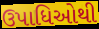
ઉપાધિઓથી